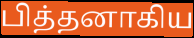
பித்தனாகிய